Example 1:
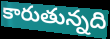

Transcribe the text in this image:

కారుతున్నది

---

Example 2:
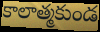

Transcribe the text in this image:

కాలాత్మకుండ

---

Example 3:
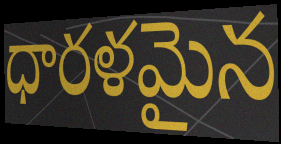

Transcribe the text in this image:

ధారళమైన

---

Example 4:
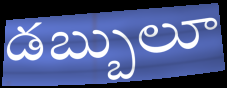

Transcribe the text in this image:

డబ్బులూ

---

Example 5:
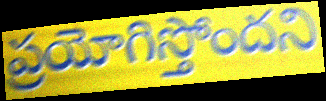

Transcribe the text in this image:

ప్రయోగిస్తోందని